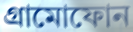
গ্ৰামোফোন